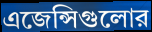
এজেন্সিগুলোর